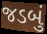
જડબું